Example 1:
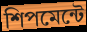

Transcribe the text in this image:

শিপমেন্টে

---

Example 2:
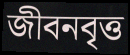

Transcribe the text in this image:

জীবনবৃত্ত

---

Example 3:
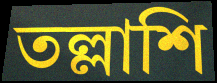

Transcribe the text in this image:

তল্লাশি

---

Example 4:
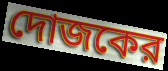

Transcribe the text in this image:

দোজকের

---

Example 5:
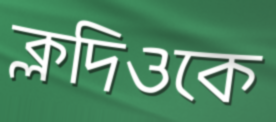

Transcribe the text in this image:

ক্লদিওকে